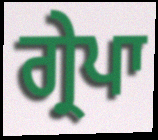
ਗ੍ਰੇਪਾ